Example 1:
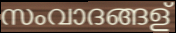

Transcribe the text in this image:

സംവാദങ്ങള്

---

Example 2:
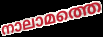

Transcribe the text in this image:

നാലാമത്തെ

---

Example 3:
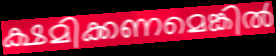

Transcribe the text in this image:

ക്ഷമിക്കണമെങ്കിൽ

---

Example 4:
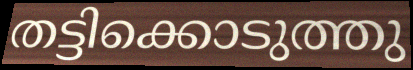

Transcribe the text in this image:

തട്ടിക്കൊടുത്തു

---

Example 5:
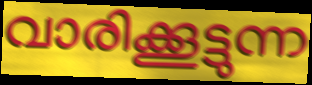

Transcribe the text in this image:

വാരിക്കൂട്ടുന്ന